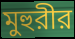
মুহুরীর